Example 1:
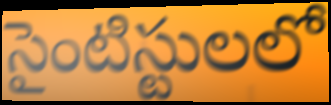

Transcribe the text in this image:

సైంటిస్టులలో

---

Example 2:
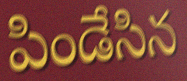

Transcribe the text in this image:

పిండేసిన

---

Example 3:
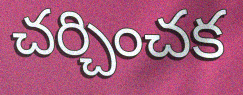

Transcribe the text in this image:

చర్చించక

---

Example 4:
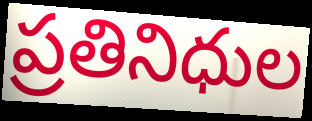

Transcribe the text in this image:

ప్రతినిధుల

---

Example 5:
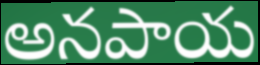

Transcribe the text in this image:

అనపాయ